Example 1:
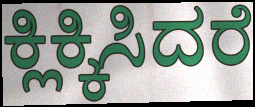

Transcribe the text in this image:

ಕ್ಲಿಕ್ಕಿಸಿದರೆ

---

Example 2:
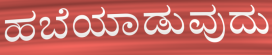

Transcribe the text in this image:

ಹಬೆಯಾಡುವುದು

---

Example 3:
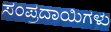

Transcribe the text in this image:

ಸಂಪ್ರದಾಯಿಗಳು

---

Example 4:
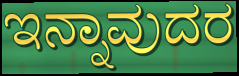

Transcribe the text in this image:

ಇನ್ನಾವುದರ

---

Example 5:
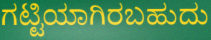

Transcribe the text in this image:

ಗಟ್ಟಿಯಾಗಿರಬಹುದು